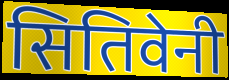
सितिवेनी